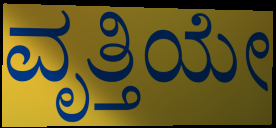
ವೃತ್ತಿಯೇ